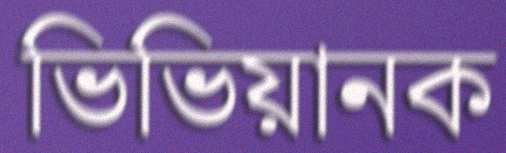
ভিভিয়ানক